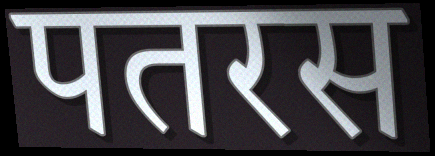
पतरस